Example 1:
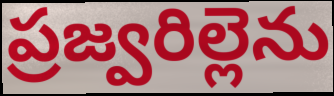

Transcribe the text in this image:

ప్రజ్వరిల్లెను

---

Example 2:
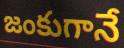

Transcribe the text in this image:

జంకుగానే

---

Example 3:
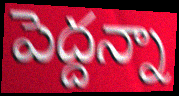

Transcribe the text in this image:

పెద్దన్నా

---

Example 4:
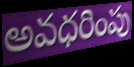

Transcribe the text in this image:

అవధరింపు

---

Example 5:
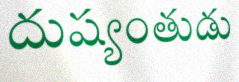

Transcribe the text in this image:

దుష్యంతుడు